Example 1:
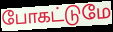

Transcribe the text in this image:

போகட்டுமே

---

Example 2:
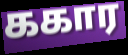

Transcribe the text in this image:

ககார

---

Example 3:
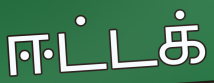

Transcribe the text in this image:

ஈட்டக்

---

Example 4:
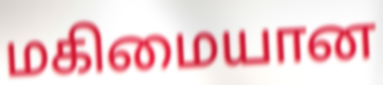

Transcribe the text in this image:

மகிமையான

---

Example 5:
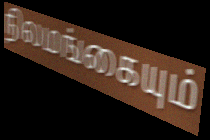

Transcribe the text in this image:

நிலமங்கையும்